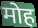
मोह